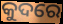
କୁଦରେ